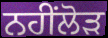
ਨਹੀਂਲੋੜ